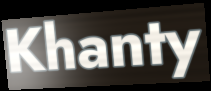
Khanty